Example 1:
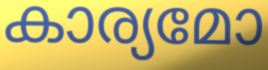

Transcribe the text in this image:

കാര്യമോ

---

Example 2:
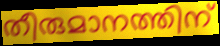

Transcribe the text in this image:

തീരുമാനത്തിന്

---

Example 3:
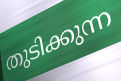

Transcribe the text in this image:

തുടിക്കുന്ന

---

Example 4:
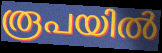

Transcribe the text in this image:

രൂപയിൽ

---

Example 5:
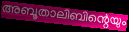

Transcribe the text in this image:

അബൂതാലിബിന്റെയും